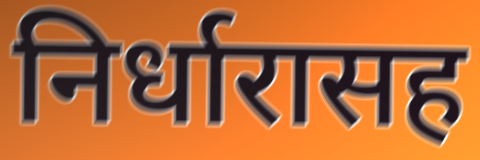
निर्धारासह